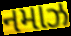
નમાઝ